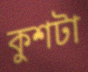
কুশটা